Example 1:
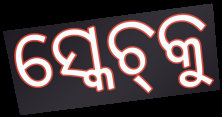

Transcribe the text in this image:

ସ୍କେଚ୍‌କୁ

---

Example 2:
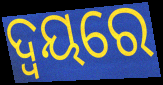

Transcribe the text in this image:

ଦ୍ୱୟରେ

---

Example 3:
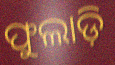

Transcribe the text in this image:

ଫୁଲାଡ଼ି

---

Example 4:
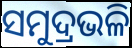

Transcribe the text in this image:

ସମୁଦ୍ରଭଳି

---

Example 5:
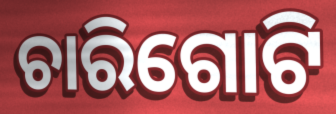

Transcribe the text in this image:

ଚାରିଗୋଟି